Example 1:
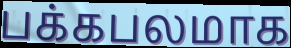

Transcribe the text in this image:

பக்கபலமாக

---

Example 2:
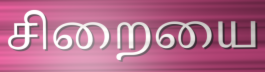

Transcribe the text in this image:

சிறையை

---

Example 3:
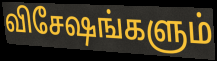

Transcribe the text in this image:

விசேஷங்களும்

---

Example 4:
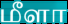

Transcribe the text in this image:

மீளா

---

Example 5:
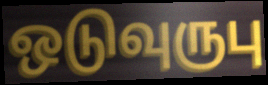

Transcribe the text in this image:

ஒடுவுருபு